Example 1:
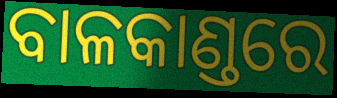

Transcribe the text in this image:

ବାଳକାଣ୍ଡରେ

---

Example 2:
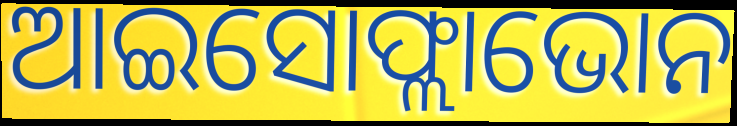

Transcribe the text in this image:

ଆଇସୋଫ୍ଲାଭୋନ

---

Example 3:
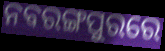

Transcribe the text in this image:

ନବରଙ୍ଗପୁରରେ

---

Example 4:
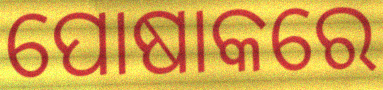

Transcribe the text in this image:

ପୋଷାକରେ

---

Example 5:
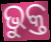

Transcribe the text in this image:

ଭୁକ୍ତ